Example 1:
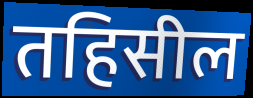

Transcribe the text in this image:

तहिसील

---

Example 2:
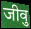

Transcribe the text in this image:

जीवु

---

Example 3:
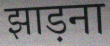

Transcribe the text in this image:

झाड़ना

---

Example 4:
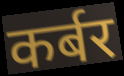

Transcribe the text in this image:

कर्बर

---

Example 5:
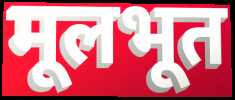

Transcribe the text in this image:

मूलभूत